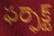
ఫర్ఫెక్ట్